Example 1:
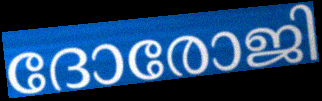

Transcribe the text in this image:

ദോരോജി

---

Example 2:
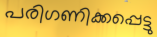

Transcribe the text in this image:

പരിഗണിക്കപ്പെട്ടു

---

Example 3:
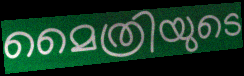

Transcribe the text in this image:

മൈത്രിയുടെ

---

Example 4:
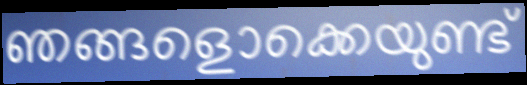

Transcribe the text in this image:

ഞങ്ങളൊക്കെയുണ്ട്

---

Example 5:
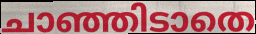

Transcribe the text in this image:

ചാഞ്ഞിടാതെ